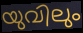
യുവിലും